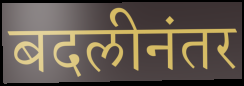
बदलीनंतर